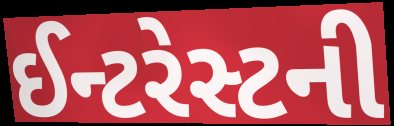
ઈન્ટરેસ્ટની